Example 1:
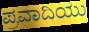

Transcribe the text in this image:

ಪ್ರವಾದಿಯು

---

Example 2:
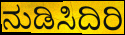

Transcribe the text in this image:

ನುಡಿಸಿದಿರಿ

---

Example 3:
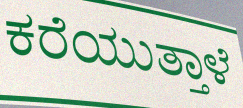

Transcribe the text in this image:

ಕರೆಯುತ್ತಾಳೆ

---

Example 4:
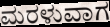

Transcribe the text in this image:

ಮರಳುವಾಗ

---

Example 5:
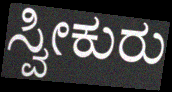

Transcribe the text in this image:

ಸ್ವೀಕುರು